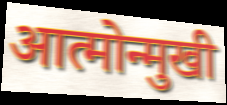
आत्मोन्मुखी